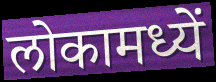
लोकामध्यें